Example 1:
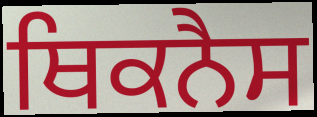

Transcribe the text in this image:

ਥਿਕਨੈਸ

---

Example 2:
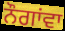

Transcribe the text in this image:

ਨੌਗਾਂਵਾ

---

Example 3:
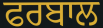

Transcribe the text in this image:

ਫਰਬਾਲ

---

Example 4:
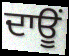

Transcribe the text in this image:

ਦਾਊਂ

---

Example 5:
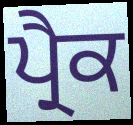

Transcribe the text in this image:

ਪ੍ਰੈਕ